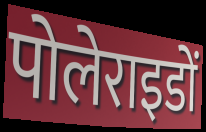
पोलेराइडों